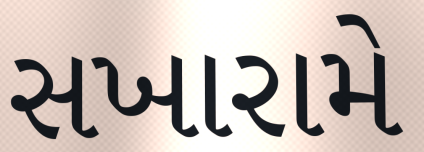
સખારામે